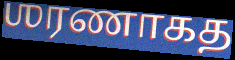
ஶரணாகத